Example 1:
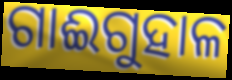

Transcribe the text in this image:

ଗାଈଗୁହାଳ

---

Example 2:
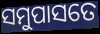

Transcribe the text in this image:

ସମୁପାସତେ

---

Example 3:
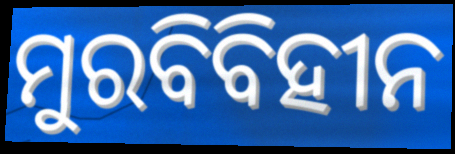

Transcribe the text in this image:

ମୁରବିବିହୀନ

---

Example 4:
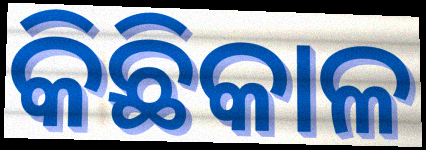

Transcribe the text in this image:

କିଛିକାଳ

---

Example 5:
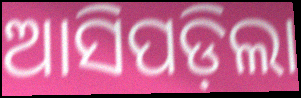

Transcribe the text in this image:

ଆସିପଡ଼ିଲା